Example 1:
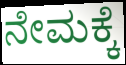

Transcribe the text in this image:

ನೇಮಕ್ಕೆ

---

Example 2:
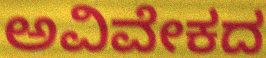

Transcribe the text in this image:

ಅವಿವೇಕದ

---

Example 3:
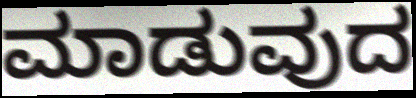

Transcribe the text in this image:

ಮಾಡುವುದ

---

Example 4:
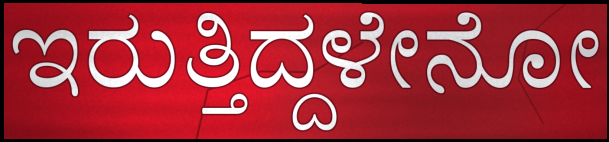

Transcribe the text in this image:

ಇರುತ್ತಿದ್ದಳೇನೋ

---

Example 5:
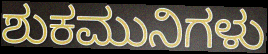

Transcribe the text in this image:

ಶುಕಮುನಿಗಳು